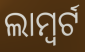
ଲାମ୍ବର୍ଟ